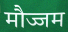
मौज्जम